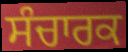
ਸੰਚਾਰਕ